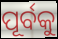
ପୂର୍ବକୁ